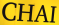
CHAI